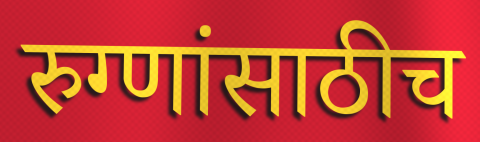
रुग्णांसाठीच